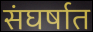
संघर्षात